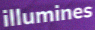
illumines